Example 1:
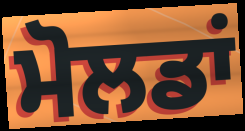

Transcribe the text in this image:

ਮੋਲਡਾਂ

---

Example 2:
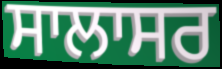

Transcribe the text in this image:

ਸਾਲਾਸਰ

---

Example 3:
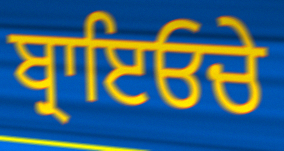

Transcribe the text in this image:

ਬ੍ਰਾਇਓਚੇ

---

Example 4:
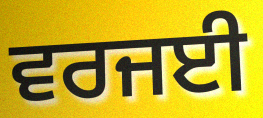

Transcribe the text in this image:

ਵਰਜਈ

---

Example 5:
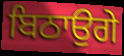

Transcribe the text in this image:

ਬਿਠਾਉਗੇ